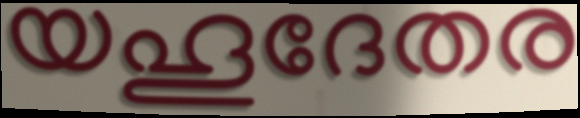
യഹൂദേതര